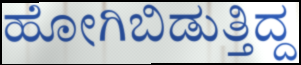
ಹೋಗಿಬಿಡುತ್ತಿದ್ದ